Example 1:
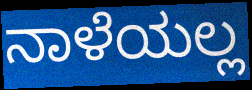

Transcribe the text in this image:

ನಾಳೆಯಲ್ಲ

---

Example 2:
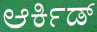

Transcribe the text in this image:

ಆರ್ಕಿಡ್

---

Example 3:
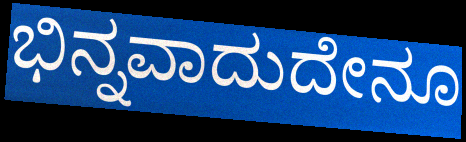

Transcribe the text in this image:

ಭಿನ್ನವಾದುದೇನೂ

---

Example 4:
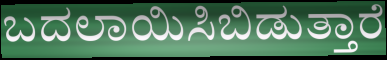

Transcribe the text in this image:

ಬದಲಾಯಿಸಿಬಿಡುತ್ತಾರೆ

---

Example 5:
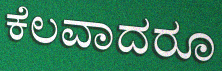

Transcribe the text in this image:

ಕೆಲವಾದರೂ